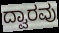
ದ್ವಾರವು